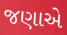
જણાએ